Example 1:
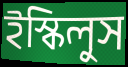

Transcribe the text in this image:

ইস্কিলুস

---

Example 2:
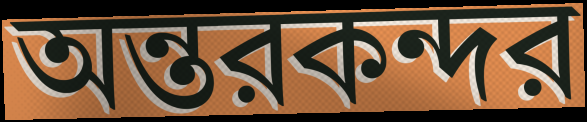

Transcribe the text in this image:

অন্তরকন্দর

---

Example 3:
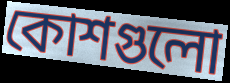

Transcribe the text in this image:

কোশগুলো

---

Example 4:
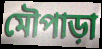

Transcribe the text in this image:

মৌপাড়া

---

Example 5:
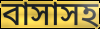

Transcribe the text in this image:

বাসাসহ